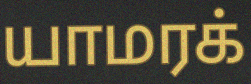
யாமரக்